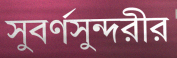
সুবর্ণসুন্দরীর